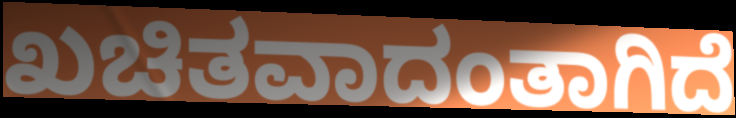
ಖಚಿತವಾದಂತಾಗಿದೆ